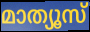
മാത്യൂസ്